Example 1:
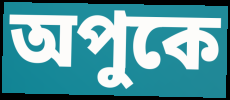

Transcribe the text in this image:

অপুকে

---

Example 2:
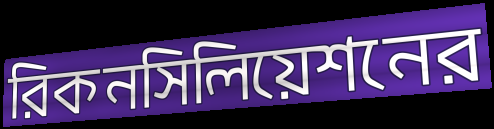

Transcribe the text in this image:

রিকনসিলিয়েশনের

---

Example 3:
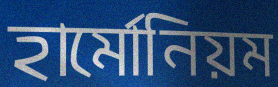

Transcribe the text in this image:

হার্মোনিয়ম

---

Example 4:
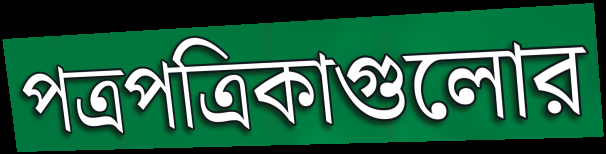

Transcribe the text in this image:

পত্রপত্রিকাগুলোর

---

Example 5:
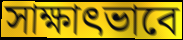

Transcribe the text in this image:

সাক্ষাৎভাবে